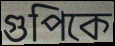
গুপিকে